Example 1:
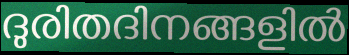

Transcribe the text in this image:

ദുരിതദിനങ്ങളിൽ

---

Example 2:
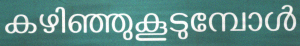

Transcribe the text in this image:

കഴിഞ്ഞുകൂടുമ്പോൾ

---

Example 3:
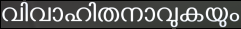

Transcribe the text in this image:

വിവാഹിതനാവുകയും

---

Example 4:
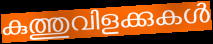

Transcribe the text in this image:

കുത്തുവിളക്കുകൾ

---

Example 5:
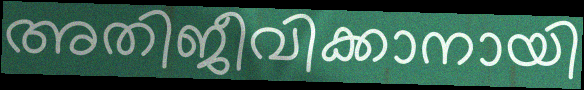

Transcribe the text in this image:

അതിജീവിക്കാനായി